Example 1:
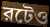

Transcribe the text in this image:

রটেও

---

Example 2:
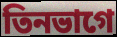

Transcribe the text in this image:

তিনভাগে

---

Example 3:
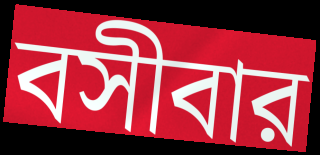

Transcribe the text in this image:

বসীবার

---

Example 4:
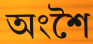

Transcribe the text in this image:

অংশৈ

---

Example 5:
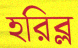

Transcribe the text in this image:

হরিব্ল